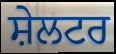
ਸ਼ੇਲਟਰ